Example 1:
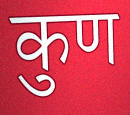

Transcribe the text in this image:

कुण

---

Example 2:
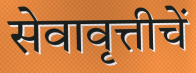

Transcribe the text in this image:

सेवावृत्तीचें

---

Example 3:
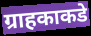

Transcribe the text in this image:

ग्राहकाकडे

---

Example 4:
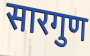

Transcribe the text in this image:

सारगुण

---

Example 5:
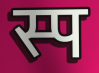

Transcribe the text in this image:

स्प